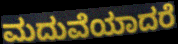
ಮದುವೆಯಾದರೆ